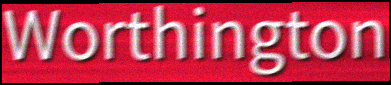
Worthington